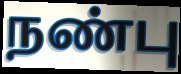
நண்பு